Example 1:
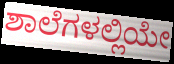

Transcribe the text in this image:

ಶಾಲೆಗಳಲ್ಲಿಯೇ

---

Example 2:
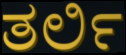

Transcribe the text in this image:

ತರ್ಲಿ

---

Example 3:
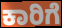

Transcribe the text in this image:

ಕಾರಿಗೆ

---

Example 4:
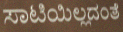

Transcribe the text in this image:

ಸಾಟಿಯಿಲ್ಲದಂತೆ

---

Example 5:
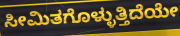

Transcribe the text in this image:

ಸೀಮಿತಗೊಳ್ಳುತ್ತಿದೆಯೇ